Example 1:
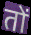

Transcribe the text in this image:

तों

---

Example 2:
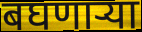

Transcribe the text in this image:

बघणाऱ्या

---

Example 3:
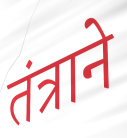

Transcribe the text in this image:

तंत्राने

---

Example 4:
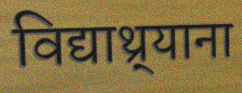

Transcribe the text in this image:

विद्याथ्र्याना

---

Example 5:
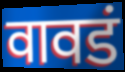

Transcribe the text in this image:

वावडं